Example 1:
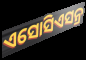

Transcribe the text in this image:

ଏସୋସିଏସନ୍ର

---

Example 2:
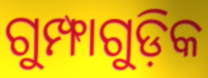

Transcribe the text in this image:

ଗୁମ୍ଫାଗୁଡ଼ିକ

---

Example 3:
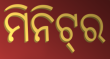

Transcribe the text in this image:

ମିନିଟ୍‌ର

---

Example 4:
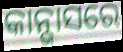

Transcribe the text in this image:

କାନ୍ଭାସରେ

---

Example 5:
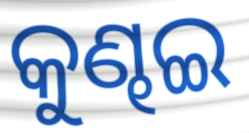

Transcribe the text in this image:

କୁଣ୍ଢଇ